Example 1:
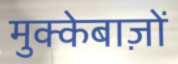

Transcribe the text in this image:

मुक्केबाज़ों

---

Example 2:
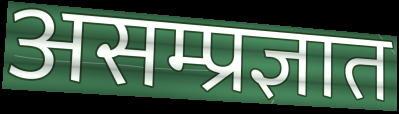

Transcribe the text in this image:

असम्प्रज्ञात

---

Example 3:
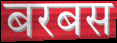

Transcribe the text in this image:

बरबस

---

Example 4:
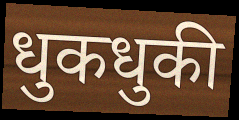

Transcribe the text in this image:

धुकधुकी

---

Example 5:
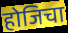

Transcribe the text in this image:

होजिचा